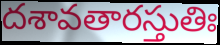
దశావతారస్తుతిః